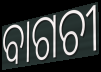
ବାଗଚୀ